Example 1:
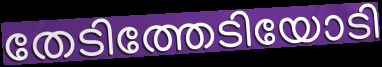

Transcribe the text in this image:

തേടിത്തേടിയോടി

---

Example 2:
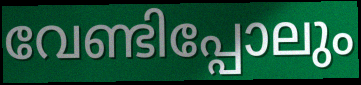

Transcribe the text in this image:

വേണ്ടിപ്പോലും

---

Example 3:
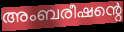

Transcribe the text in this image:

അംബരീഷന്റെ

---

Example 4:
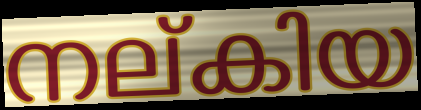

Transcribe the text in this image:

നല്‌കിയ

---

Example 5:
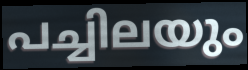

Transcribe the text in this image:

പച്ചിലയും